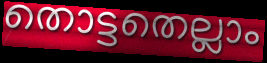
തൊട്ടതെല്ലാം